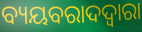
ବ୍ୟୟବରାଦଦ୍ଵାରା